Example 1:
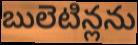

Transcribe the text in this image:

బులెటిన్లను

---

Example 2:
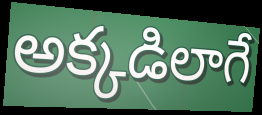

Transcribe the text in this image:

అక్కడిలాగే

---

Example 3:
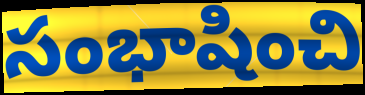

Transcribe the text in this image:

సంభాషించి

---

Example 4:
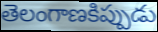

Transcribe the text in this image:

తెలంగాణకిప్పుడు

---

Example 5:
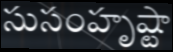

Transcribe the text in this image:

సుసంహృష్టా